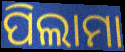
ପିଲାମା